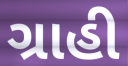
ગ્રાહી